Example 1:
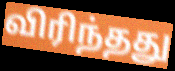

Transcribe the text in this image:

விரிந்தது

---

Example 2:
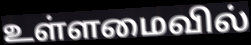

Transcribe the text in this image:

உள்ளமைவில்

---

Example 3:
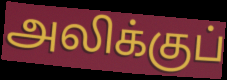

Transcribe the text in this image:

அலிக்குப்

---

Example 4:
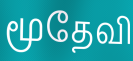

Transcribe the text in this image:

மூதேவி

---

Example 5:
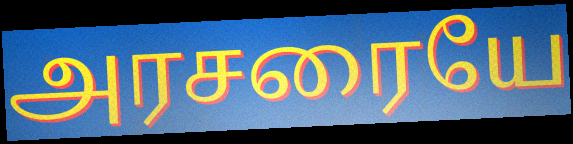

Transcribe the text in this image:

அரசரையே